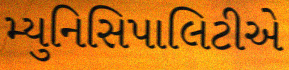
મ્યુનિસિપાલિટીએ